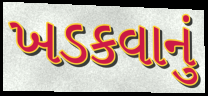
ખડકવાનું